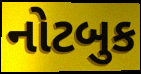
નોટબુક